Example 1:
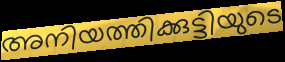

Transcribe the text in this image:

അനിയത്തിക്കുട്ടിയുടെ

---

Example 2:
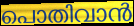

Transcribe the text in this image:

പൊതിവാൻ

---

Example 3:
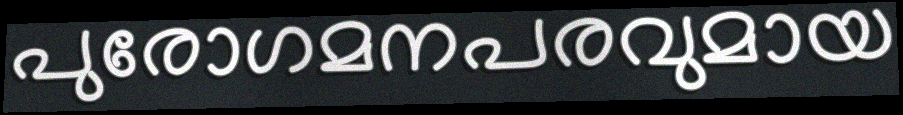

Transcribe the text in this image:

പുരോഗമനപരവുമായ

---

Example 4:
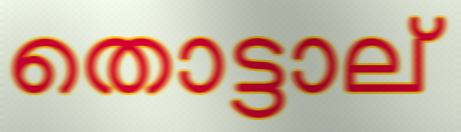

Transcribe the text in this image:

തൊട്ടാല്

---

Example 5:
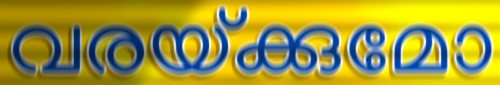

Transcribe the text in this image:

വരയ്‌ക്കുമോ